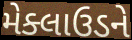
મેક્લાઉડને